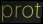
prot